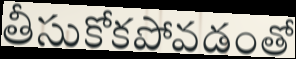
తీసుకోకపోవడంతో